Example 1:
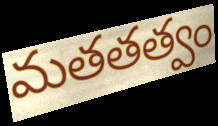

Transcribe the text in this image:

మతతత్వం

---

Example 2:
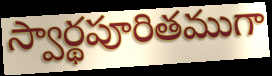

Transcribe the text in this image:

స్వార్థపూరితముగా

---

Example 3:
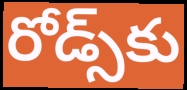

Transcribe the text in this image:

రోడ్స్‌కు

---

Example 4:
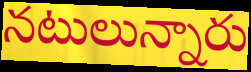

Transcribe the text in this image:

నటులున్నారు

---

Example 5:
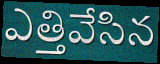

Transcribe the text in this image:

ఎత్తివేసిన